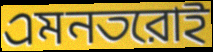
এমনতরোই